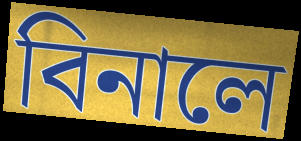
বিনালে